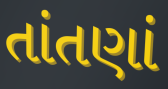
તાંતણાં